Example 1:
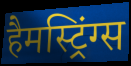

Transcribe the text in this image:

हैमस्ट्रिंग्स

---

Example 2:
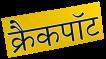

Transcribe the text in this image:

क्रैकपॉट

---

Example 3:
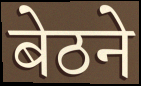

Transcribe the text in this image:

बेठने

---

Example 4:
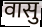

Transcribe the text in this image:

वासु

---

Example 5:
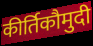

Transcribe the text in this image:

कीर्तिकौमुदी